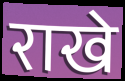
राखे